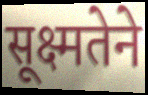
सूक्ष्मतेने